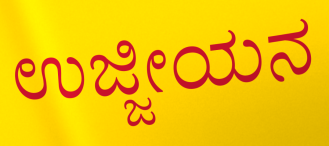
ಉಜ್ಜೀಯನ